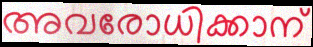
അവരോധിക്കാന്